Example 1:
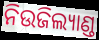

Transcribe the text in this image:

ନିଉଜିଲ୍ୟାଣ୍ଡ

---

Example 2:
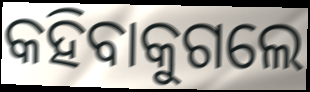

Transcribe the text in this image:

କହିବାକୁଗଲେ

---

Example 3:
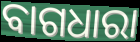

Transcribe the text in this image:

ବାଗଧାରା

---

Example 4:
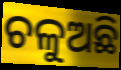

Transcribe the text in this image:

ଚଳୁଅଛି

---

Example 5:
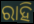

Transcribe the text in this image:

ରାହି